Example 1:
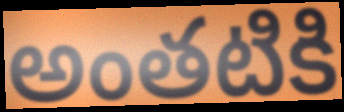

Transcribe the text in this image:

అంతటికి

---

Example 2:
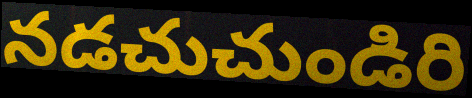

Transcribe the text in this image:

నడచుచుండిరి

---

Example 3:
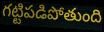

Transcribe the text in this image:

గట్టిపడిపోతుంది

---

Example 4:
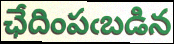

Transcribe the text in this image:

ఛేదింపఁబడిన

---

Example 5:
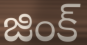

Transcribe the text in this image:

జింక్